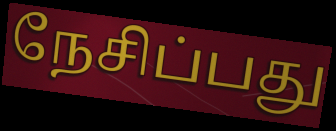
நேசிப்பது